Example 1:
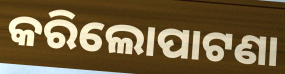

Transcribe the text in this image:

କରିଲୋପାଟଣା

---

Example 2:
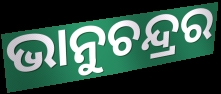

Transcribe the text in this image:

ଭାନୁଚନ୍ଦ୍ରର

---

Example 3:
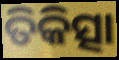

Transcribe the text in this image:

ତିକିତ୍ସା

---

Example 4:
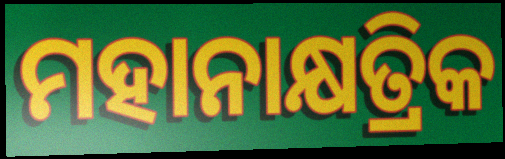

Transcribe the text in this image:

ମହାନାକ୍ଷତ୍ରିକ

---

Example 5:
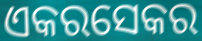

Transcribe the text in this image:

ଏକରସେକର